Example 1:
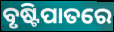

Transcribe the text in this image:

ବୃଷ୍ଟିପାତରେ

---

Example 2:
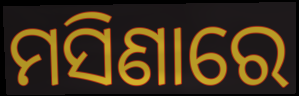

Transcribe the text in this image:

ମସିଣାରେ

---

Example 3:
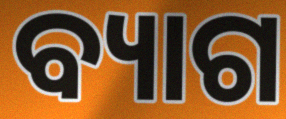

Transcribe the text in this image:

ବ୍ୟାଗ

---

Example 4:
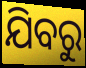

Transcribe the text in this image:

ଯିବରୁ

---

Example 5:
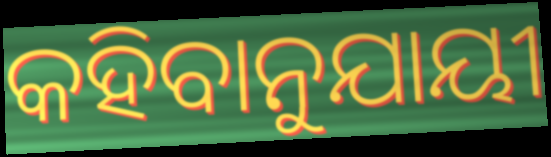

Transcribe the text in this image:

କହିବାନୁଯାୟୀ